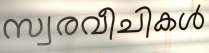
സ്വരവീചികൾ